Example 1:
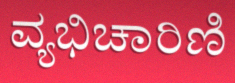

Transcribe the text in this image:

ವ್ಯಭಿಚಾರಿಣಿ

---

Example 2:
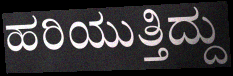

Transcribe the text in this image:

ಹರಿಯುತ್ತಿದ್ದು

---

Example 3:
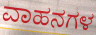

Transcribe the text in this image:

ವಾಹನಗಳ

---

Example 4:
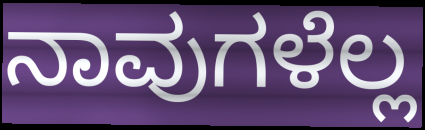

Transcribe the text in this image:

ನಾವುಗಳೆಲ್ಲ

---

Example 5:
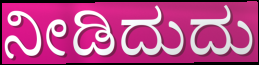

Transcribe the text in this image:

ನೀಡಿದುದು